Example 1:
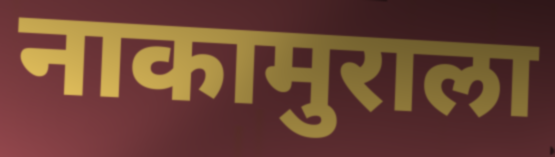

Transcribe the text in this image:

नाकामुराला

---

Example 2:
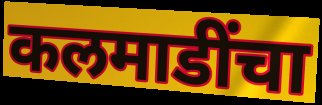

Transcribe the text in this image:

कलमाडींचा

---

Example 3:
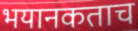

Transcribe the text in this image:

भयानकताच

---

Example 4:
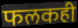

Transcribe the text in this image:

फलकही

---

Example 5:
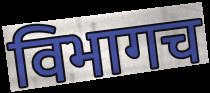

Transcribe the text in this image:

विभागच